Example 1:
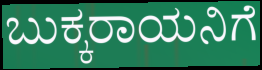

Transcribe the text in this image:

ಬುಕ್ಕರಾಯನಿಗೆ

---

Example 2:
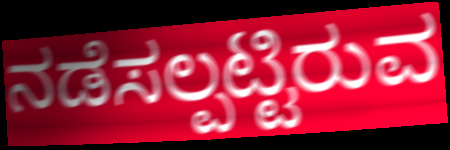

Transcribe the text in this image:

ನಡೆಸಲ್ಪಟ್ಟಿರುವ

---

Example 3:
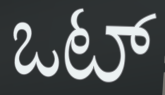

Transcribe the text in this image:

ಒಟ್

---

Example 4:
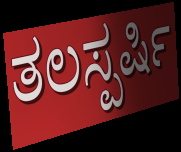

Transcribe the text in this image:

ತಲಸ್ಪರ್ಷಿ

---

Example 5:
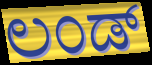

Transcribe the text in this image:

ಲಂಡ್